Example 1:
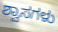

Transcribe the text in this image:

ಶ್ವಾಸಗಳು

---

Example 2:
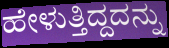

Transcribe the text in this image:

ಹೇಳುತ್ತಿದ್ದದನ್ನು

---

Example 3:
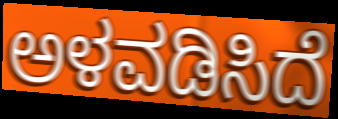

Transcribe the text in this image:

ಅಳವಡಿಸಿದೆ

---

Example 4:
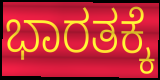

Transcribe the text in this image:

ಭಾರತಕ್ಕೆ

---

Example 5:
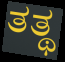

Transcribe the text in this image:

ತತ್ಥ